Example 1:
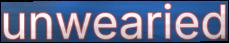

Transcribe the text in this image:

unwearied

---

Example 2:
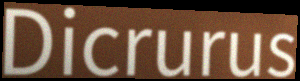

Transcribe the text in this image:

Dicrurus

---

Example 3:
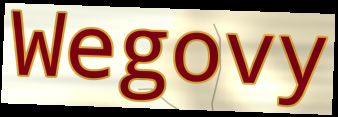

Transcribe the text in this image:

Wegovy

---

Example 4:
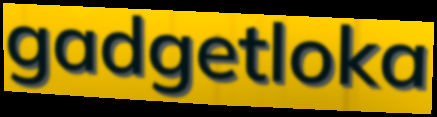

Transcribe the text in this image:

gadgetloka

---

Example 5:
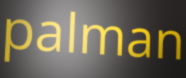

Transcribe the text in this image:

palman